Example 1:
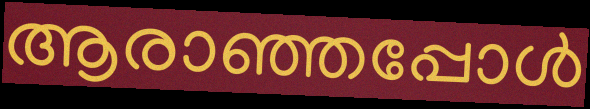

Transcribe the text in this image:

ആരാഞ്ഞപ്പോൾ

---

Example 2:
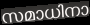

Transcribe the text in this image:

സമാധിനാ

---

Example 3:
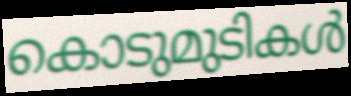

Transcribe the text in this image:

കൊടുമുടികൾ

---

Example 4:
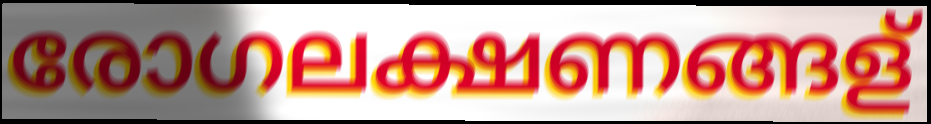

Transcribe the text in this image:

രോഗലക്ഷണങ്ങള്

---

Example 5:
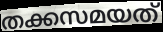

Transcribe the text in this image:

തക്കസമയത്